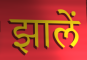
झालें